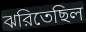
ঝরিতেছিল